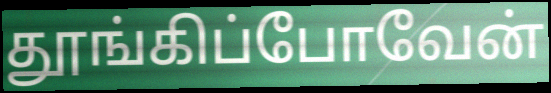
தூங்கிப்போவேன்